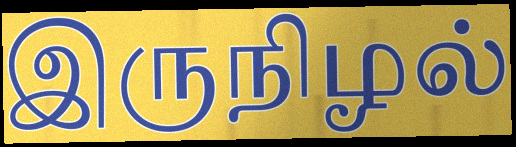
இருநிழல்